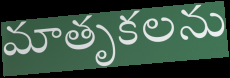
మాతృకలను